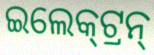
ଇଲେକ୍‍ଟ୍ରନ୍